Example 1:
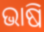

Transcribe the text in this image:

ଭାଷି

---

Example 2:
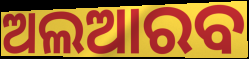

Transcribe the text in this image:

ଅଲଆରବ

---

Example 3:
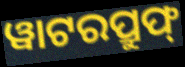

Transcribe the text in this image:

ୱାଟରପ୍ରୁଫ୍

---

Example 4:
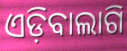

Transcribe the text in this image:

ଏଡ଼ିବାଲାଗି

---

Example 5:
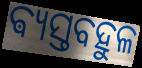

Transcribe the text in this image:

ଵ୍ୟସ୍ତବହୁଳ